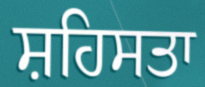
ਸ਼ਹਿਸਤਾ